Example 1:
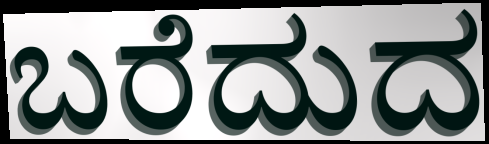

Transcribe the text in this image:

ಬರೆದುದ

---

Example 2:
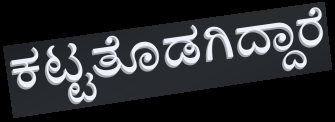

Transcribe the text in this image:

ಕಟ್ಟತೊಡಗಿದ್ದಾರೆ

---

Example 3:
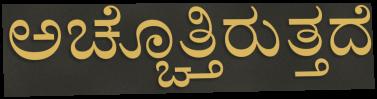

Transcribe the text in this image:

ಅಚ್ಚೊತ್ತಿರುತ್ತದೆ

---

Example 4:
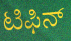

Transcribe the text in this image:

ಟಿಫಿನ್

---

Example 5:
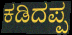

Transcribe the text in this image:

ಕಡಿದಪ್ಪ